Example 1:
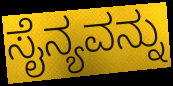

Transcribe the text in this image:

ಸೈನ್ಯವನ್ನು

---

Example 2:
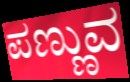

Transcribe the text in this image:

ಪಣ್ಣುವ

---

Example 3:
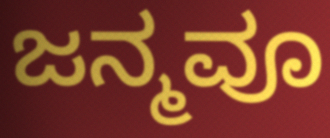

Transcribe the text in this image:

ಜನ್ಮವೂ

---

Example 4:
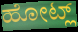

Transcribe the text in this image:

ಹೋಟ್ಲ್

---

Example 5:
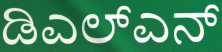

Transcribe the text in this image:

ಡಿಎಲ್ಎನ್